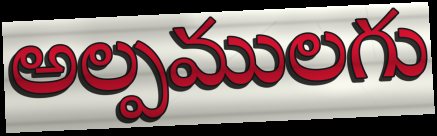
అల్పములగు